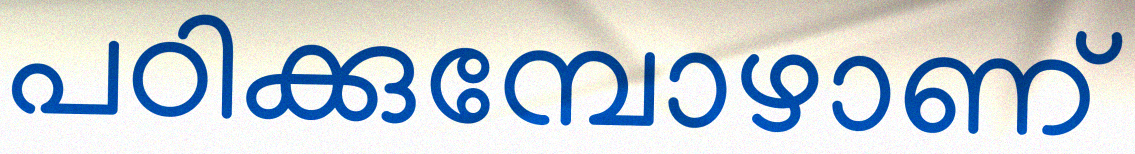
പഠിക്കുമ്പോഴാണ്